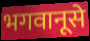
भगवानूसे